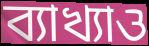
ব্যাখ্যাও